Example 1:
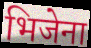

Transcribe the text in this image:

भिजेना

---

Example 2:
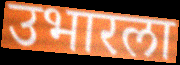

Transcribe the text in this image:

उभारला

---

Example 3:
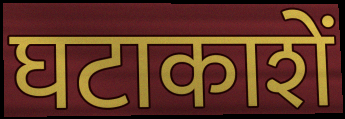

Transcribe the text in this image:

घटाकाशें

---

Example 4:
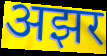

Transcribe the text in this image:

अझर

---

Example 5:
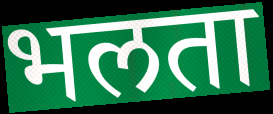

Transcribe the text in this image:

भलता